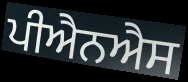
ਪੀਐਨਐਸ